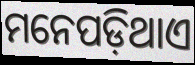
ମନେପଡ଼ିଥାଏ